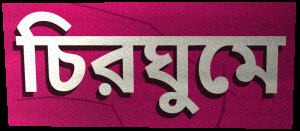
চিরঘুমে